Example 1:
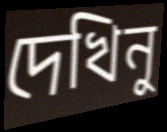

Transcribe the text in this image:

দেখিনু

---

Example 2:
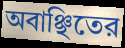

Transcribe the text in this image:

অবাঞ্ছিতের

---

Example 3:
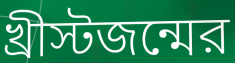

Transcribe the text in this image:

খ্রীস্টজন্মের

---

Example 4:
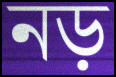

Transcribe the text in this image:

নড়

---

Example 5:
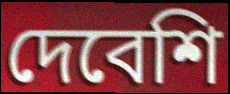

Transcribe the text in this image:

দেবেশি